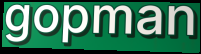
gopman